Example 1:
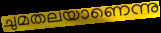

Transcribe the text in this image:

ചുമതലയാണെന്നു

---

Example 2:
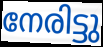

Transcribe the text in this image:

നേരിട്ടു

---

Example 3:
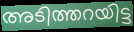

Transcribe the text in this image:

അടിത്തറയിട്ട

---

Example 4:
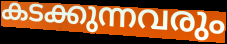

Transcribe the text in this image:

കടക്കുന്നവരും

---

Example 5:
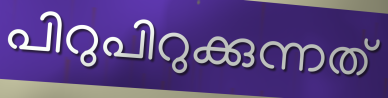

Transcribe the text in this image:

പിറുപിറുക്കുന്നത്